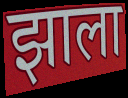
झाला